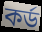
কৰ্ড